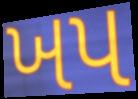
ખપ